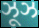
ઝૂઝ